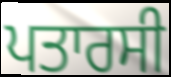
ਪਤਾਰਸੀ